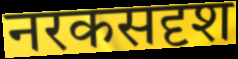
नरकसदृश